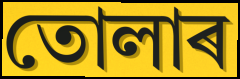
তোলাৰ